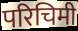
परिचिमी